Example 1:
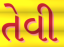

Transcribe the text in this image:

તેવી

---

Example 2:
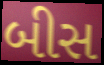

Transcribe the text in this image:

બીસ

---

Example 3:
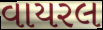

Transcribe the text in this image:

વાયરલ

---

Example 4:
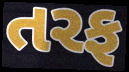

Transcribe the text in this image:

તરફ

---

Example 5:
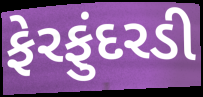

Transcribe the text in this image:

ફેરફુંદરડી